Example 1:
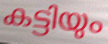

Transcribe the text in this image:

കട്ടിയും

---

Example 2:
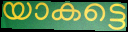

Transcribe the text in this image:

യാകട്ടെ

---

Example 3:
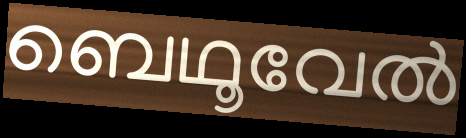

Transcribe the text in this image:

ബെഥൂവേൽ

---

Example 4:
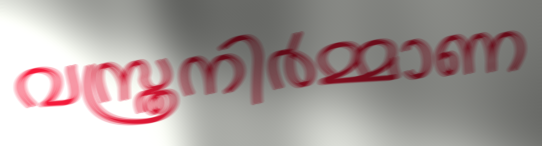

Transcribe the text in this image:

വസ്ത്രനിർമ്മാണ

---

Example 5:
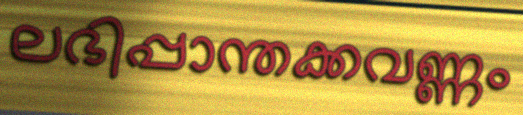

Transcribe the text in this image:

ലഭിപ്പാന്തക്കവണ്ണം